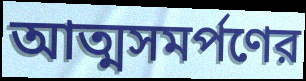
আত্মসমর্পণের